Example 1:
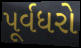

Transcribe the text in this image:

પૂર્વધરો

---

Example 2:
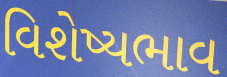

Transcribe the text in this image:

વિશેષ્યભાવ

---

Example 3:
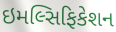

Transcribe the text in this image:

ઇમલ્સિફિકેશન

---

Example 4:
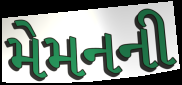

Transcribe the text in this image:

મેમનની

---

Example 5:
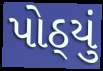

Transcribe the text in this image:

પોઠ્યું